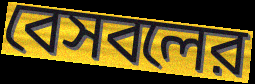
বেসবলের